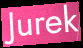
Jurek